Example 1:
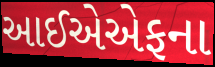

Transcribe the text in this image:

આઈએએફના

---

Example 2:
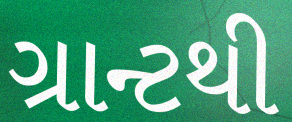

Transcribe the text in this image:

ગ્રાન્ટથી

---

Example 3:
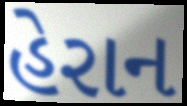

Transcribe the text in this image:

હેરાન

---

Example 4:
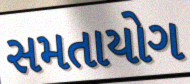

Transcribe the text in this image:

સમતાયોગ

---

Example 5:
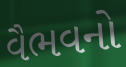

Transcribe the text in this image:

વૈભવનો